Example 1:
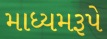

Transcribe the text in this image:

માધ્યમરૂપે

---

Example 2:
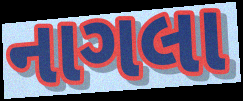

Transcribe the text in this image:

નાગલા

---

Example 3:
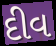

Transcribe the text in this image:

દીવ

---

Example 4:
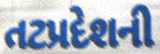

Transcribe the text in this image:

તટપ્રદેશની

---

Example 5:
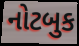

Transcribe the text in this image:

નોટબુક